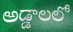
అడ్డాలలో